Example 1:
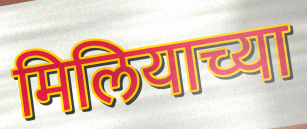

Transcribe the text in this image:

मिलियाच्या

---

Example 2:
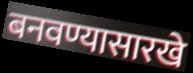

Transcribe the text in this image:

बनवण्यासारखे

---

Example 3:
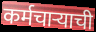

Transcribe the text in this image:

कर्मचार्‍याची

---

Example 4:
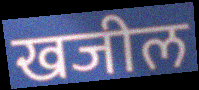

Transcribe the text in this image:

खजील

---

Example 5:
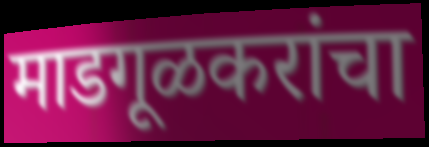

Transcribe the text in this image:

माडगूळकरांचा